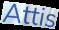
Attis